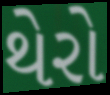
થેરો